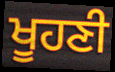
ਖੂਹਣੀ